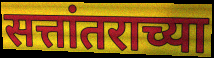
सत्तांतराच्या